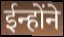
ईन्होंने